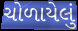
ચોળાયેલું